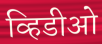
व्हिडीओ